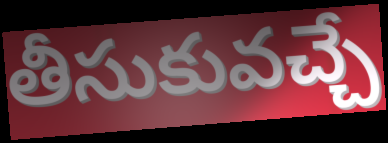
తీసుకువచ్చే